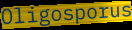
Oligosporus